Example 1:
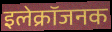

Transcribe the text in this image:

इलेक्रॉजनक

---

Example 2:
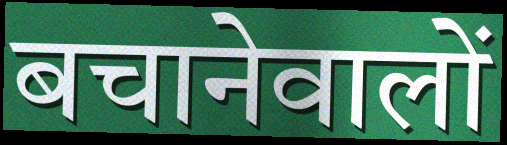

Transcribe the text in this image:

बचानेवालों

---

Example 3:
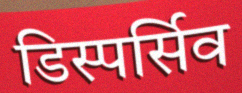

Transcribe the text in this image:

डिस्पर्सिव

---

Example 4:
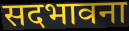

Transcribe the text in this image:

सदभावना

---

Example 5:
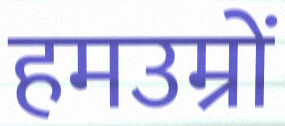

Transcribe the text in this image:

हमउम्रों